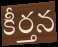
కీర్తన